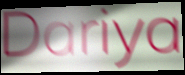
Dariya